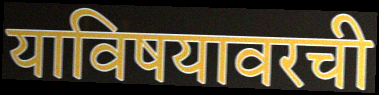
याविषयावरची